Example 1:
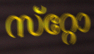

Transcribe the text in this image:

സ്‌റ്റോ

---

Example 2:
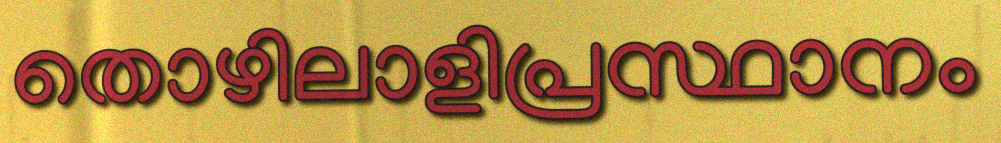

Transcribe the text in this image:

തൊഴിലാളിപ്രസ്ഥാനം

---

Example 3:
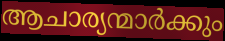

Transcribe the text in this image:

ആചാര്യന്മാർക്കും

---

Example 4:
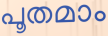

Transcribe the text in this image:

പൂതമാം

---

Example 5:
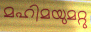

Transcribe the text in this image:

മഹിമയുമറ്റു